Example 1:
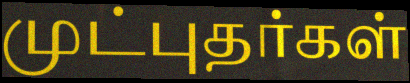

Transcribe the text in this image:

முட்புதர்கள்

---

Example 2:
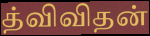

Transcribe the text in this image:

த்விவிதன்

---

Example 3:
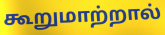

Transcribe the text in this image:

கூறுமாற்றால்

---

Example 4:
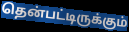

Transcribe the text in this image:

தென்பட்டிருக்கும்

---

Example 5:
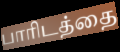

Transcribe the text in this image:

பாரிடத்தை